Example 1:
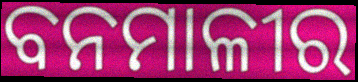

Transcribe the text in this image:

ବନମାଳୀର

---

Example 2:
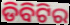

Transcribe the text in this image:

ଡିବିଟିର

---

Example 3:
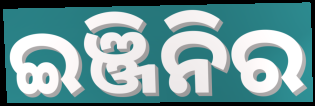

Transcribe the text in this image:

ଇଞ୍ଜିନିର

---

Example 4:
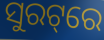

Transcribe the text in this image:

ସୁରଟ୍‌ରେ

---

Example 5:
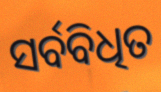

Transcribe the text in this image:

ସର୍ବବିଧିତ